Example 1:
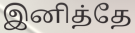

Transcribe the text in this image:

இனித்தே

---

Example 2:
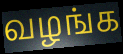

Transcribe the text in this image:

வழங்க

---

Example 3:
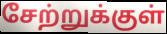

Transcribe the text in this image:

சேற்றுக்குள்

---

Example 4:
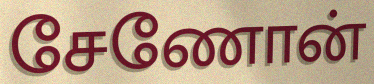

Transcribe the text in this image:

சேணோன்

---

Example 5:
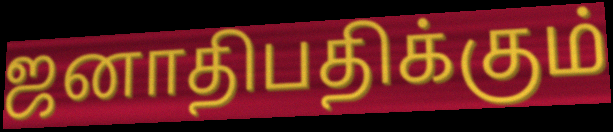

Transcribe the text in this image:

ஜனாதிபதிக்கும்